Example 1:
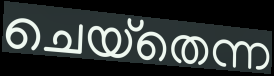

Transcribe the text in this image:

ചെയ്‌തെന്ന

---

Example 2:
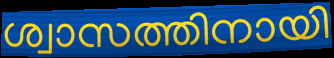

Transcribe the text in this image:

ശ്വാസത്തിനായി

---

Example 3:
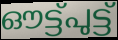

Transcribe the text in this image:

ഔട്ട്പുട്ട്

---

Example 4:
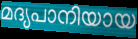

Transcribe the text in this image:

മദ്യപാനിയായ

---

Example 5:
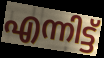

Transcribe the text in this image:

എന്നിട്ട്